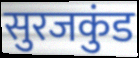
सुरजकुंड